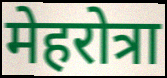
मेहरोत्रा